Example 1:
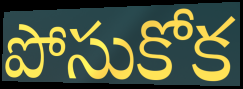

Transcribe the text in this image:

పోసుకోక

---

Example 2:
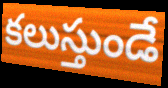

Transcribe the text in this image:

కలుస్తుండే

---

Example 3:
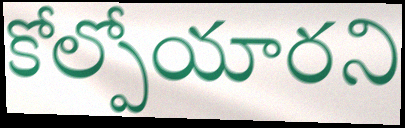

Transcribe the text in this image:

కోల్పోయారని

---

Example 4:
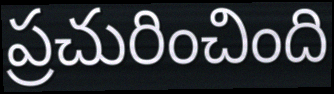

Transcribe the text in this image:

ప్రచురించింది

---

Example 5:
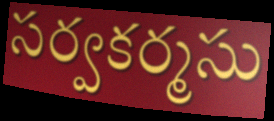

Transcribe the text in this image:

సర్వకర్మసు